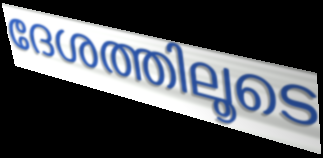
ദേശത്തിലൂടെ